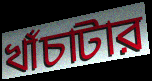
খাঁচাটার